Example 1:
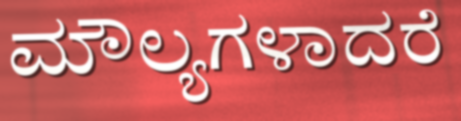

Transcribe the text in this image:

ಮೌಲ್ಯಗಳಾದರೆ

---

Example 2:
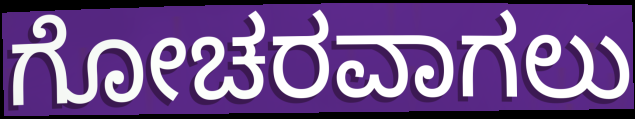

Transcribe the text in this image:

ಗೋಚರವಾಗಲು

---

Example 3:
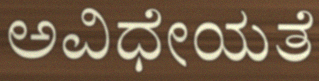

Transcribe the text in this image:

ಅವಿಧೇಯತೆ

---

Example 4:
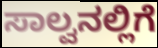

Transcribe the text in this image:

ಸಾಲ್ವನಲ್ಲಿಗೆ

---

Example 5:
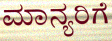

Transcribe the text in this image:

ಮಾನ್ಯರಿಗೆ